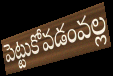
పెట్టుకోవడంవల్ల